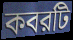
কবরটি